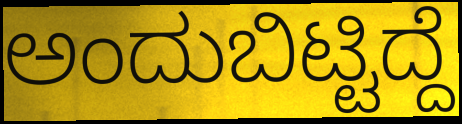
ಅಂದುಬಿಟ್ಟಿದ್ದೆ